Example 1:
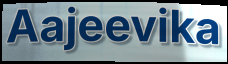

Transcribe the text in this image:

Aajeevika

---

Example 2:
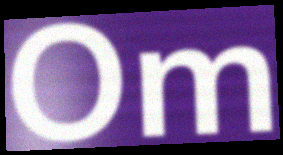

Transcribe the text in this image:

Om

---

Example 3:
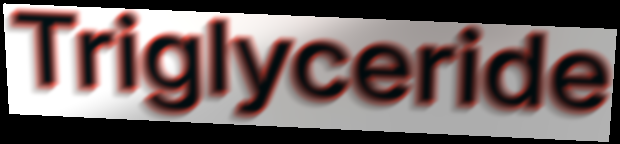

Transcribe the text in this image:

Triglyceride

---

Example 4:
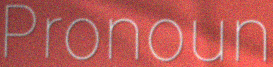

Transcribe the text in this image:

Pronoun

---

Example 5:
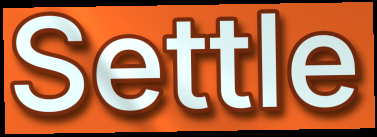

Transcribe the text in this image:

Settle